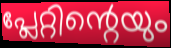
പ്ലേറ്റിന്റെയും